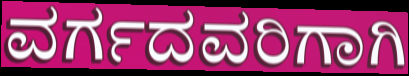
ವರ್ಗದವರಿಗಾಗಿ